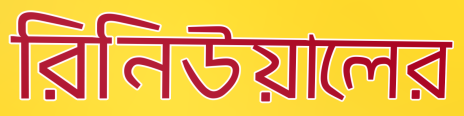
রিনিউয়ালের